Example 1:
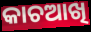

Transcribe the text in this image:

କାଚଆଖି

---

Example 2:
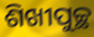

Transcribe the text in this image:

ଶିଖୀପୁଚ୍ଛ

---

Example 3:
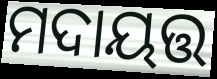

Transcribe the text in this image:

ମଦାୟତ୍ତ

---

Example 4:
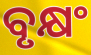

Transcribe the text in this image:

ବୃକ୍ଷଂ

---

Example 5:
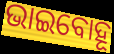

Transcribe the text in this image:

ଭାଇବୋହୂ